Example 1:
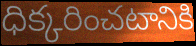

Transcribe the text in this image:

ధిక్కరించటానికి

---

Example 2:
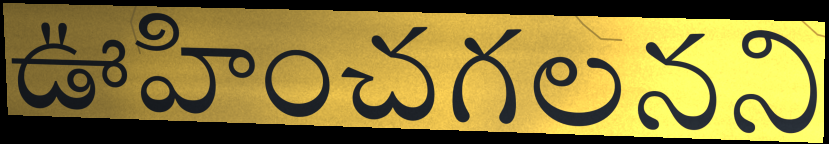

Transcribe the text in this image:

ఊహించగలనని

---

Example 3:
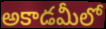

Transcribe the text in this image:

అకాడమీలో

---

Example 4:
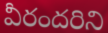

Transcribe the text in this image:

వీరందరిని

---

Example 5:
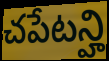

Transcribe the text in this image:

చపేటన్హి